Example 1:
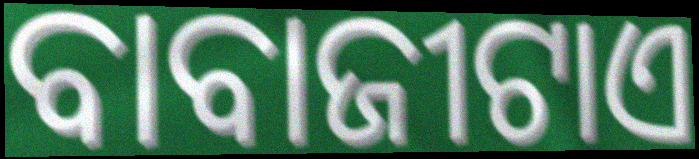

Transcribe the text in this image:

ବାବାଜୀଟାଏ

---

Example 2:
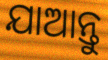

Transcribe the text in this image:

ଯାଆନ୍ତୁ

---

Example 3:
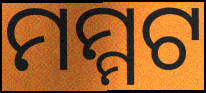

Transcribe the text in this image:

ମମ୍ମଟ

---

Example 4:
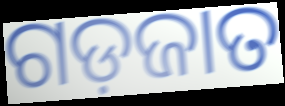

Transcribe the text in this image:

ଗଡ଼ଜାତ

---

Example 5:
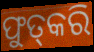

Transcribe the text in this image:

ଫୁତ୍‌କରି